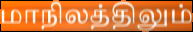
மாநிலத்திலும்